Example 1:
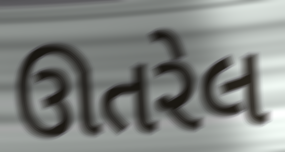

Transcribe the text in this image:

ઊતરેલ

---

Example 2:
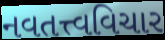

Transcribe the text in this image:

નવતત્ત્વવિચાર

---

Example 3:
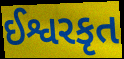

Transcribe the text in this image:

ઈશ્વરકૃત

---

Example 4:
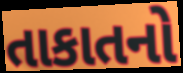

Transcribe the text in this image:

તાકાતનો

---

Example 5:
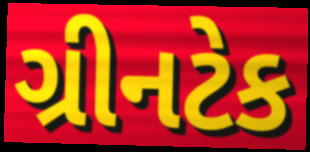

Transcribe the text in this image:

ગ્રીનટેક